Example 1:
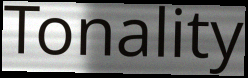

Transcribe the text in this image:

Tonality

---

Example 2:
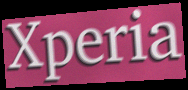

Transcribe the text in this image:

Xperia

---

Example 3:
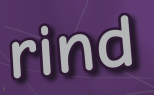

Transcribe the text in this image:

rind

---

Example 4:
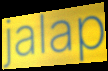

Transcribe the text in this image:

jalap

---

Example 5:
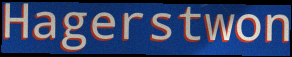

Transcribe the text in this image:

Hagerstwon